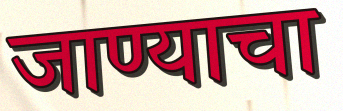
जाण्‍याचा